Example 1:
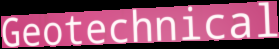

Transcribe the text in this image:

Geotechnical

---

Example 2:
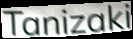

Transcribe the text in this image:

Tanizaki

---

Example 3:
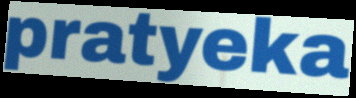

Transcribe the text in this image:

pratyeka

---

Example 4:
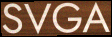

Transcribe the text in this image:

SVGA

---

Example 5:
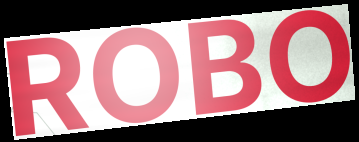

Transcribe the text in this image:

ROBO